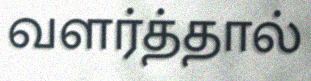
வளர்த்தால்